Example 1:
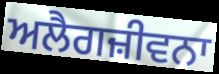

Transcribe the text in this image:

ਅਲੈਗਜ਼ੀਵਨਾ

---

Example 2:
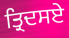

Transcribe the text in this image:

ਤ੍ਰਿਦਸਏ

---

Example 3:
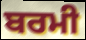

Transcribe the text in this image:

ਬਰਮੀ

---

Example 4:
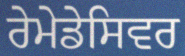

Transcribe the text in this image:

ਰੇਮੇਡੇਸਿਵਰ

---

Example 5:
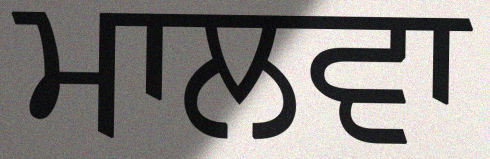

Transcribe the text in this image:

ਮਾਲਵਾ